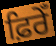
ਫ਼ਿਰੇਁ